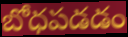
బోధపడడం